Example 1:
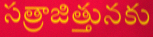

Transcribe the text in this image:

సత్రాజిత్తునకు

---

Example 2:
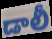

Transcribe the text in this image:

డాలీ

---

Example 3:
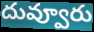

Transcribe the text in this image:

దువ్వూరు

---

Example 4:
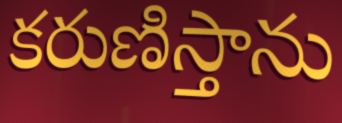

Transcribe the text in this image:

కరుణిస్తాను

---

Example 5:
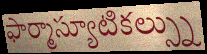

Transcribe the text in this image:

ఫార్మాస్యూటికల్స్ను